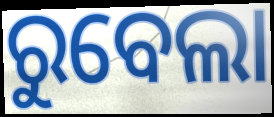
ରୁବେଲା